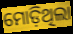
ମୋଡ଼ିଥିଲା